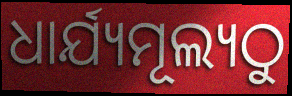
ଧାର୍ଯ୍ୟମୂଲ୍ୟଠୁ